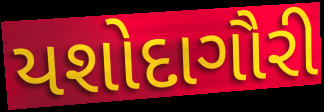
યશોદાગૌરી